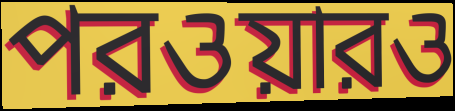
পরওয়ারও